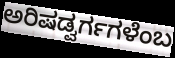
ಅರಿಷಡ್ವರ್ಗಗಳೆಂಬ